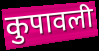
कुपावली